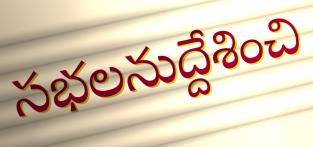
సభలనుద్దేశించి